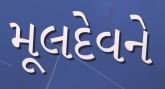
મૂલદેવને